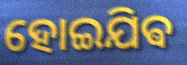
ହୋଇଯିଵ